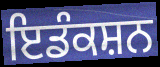
ਇਡੰਕਸ਼ਨ